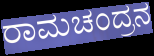
ರಾಮಚಂದ್ರನ